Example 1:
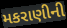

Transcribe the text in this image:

મકરાણીની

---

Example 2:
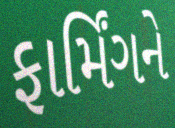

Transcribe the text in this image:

ફાર્મિંગને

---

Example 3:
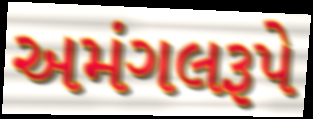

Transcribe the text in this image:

અમંગલરૂપે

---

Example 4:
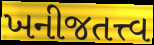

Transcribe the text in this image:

ખનીજતત્ત્વ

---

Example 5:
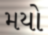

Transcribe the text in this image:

મયો